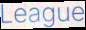
League